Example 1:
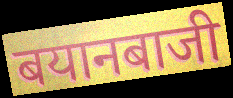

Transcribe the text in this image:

बयानबाजी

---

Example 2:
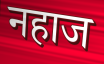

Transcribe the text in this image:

नहाज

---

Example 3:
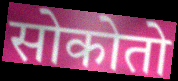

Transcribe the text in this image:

सोकोतो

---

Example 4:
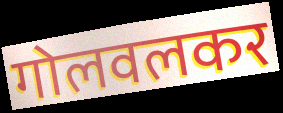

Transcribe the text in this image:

गोलवलकर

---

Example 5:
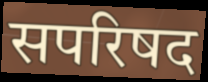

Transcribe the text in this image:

सपरिषद